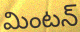
మింటన్